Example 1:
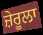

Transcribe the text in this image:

ਜ਼ੇਰੂਲਾ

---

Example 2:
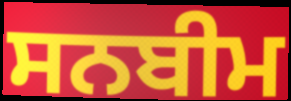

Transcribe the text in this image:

ਸਨਬੀਮ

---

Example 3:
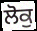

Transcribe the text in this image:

ਲੋਕੁ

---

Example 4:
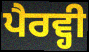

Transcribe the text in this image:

ਪੈਰਵ੍ਹੀ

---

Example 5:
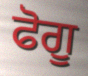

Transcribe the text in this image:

ਫੋਗੂ